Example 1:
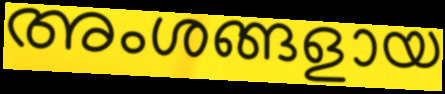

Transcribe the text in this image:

അംശങ്ങളായ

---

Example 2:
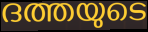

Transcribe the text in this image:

ദത്തയുടെ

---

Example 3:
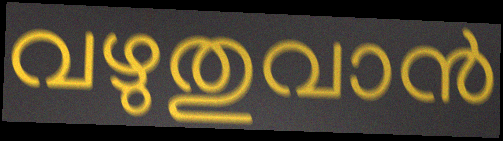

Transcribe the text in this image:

വഴുതുവാൻ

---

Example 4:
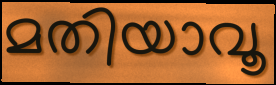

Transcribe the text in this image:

മതിയാവൂ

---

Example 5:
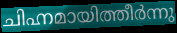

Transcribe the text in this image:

ചിഹ്നമായിത്തീർന്നു